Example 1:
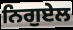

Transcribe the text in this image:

ਨਿਗੁਏਲ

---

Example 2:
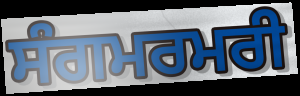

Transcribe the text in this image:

ਸੰਗਮਰਮਰੀ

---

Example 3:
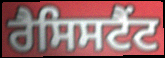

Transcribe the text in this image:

ਰੈਸਿਸਟੈਂਟ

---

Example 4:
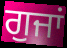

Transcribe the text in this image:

ਗੁਜਾਂ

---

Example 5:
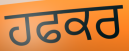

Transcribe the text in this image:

ਹਫਕਰ